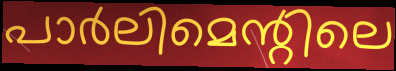
പാർലിമെന്റിലെ